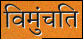
विमुंचति